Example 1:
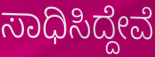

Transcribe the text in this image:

ಸಾಧಿಸಿದ್ದೇವೆ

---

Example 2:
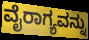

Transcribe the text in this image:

ವೈರಾಗ್ಯವನ್ನು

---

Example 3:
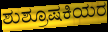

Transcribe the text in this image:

ಶುಶ್ರೂಷಕಿಯರ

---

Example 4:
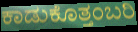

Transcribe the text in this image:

ಕಾಡುಕೊತ್ತಂಬರಿ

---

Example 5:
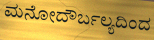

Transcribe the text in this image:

ಮನೋದೌರ್ಬಲ್ಯದಿಂದ